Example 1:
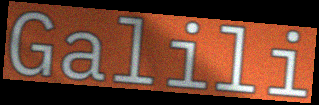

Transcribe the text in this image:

Galili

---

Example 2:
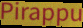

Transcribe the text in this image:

Pirappu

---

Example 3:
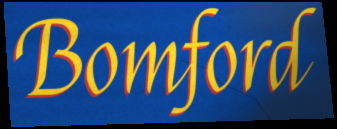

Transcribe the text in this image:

Bomford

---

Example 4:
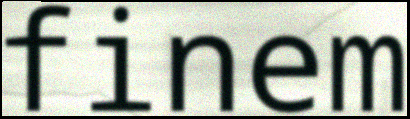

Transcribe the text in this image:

finem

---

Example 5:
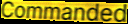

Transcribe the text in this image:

Commanded